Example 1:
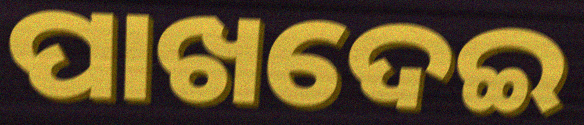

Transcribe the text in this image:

ପାଖଦେଇ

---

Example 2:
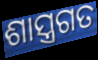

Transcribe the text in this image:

ଶାସ୍ତ୍ରଗତ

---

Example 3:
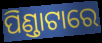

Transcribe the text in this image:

ପିଣ୍ଡାଟାରେ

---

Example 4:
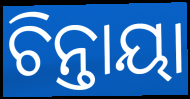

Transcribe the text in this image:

ଚିନ୍ତାୟା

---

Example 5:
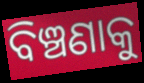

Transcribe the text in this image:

ବିଞ୍ଚଣାକୁ